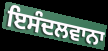
ਇਸੰਦਲਵਾਨਾ